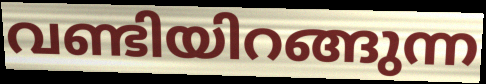
വണ്ടിയിറങ്ങുന്ന